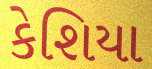
કેશિયા